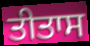
ਤੀਤਾਸ